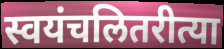
स्वयंचलितरीत्या